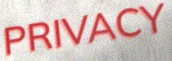
PRIVACY